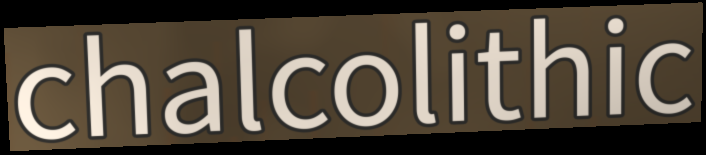
chalcolithic